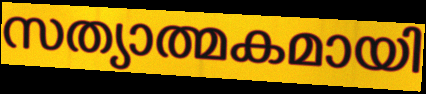
സത്യാത്മകമായി